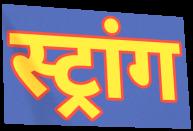
स्ट्रांग